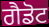
ਗੈਡੋਟ